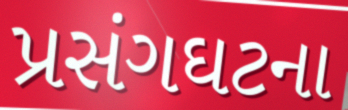
પ્રસંગઘટના